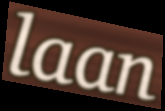
laan